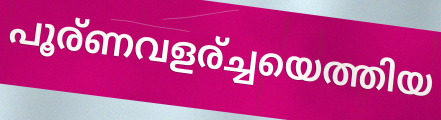
പൂര്ണവളര്ച്ചയെത്തിയ